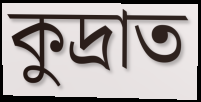
কুদ্রাত